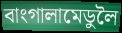
বাংগালামেডুলৈ